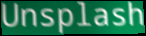
Unsplash